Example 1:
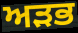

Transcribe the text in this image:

ਅੜਭ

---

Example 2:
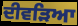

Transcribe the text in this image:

ਦੀਵੜਿਆ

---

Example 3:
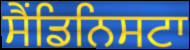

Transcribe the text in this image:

ਸੈਂਡਿਨਿਸਟਾ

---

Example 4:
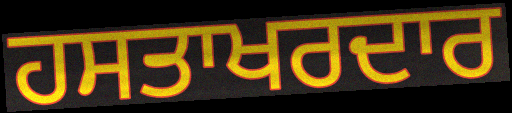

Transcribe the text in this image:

ਹਸਤਾਖਰਦਾਰ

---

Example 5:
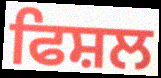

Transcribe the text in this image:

ਫਿਸ਼ਲ